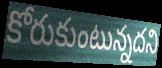
కోరుకుంటున్నదని